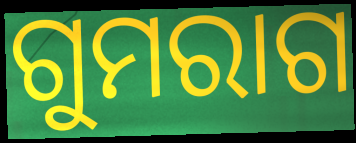
ଗୁମରାଗ